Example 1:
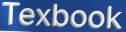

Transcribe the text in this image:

Texbook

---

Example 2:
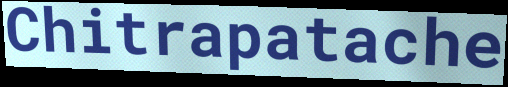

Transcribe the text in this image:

Chitrapatache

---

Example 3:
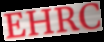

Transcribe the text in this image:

EHRC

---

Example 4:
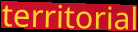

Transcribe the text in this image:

territorial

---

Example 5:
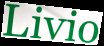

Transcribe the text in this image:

Livio